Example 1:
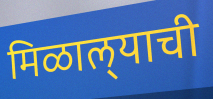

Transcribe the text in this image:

मिळाल्याची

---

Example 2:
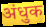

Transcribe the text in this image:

अंधुक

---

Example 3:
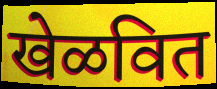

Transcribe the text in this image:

खेळवित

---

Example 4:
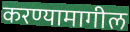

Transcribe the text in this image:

करण्यामागील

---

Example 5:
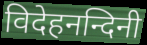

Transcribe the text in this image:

विदेहनन्दिनी